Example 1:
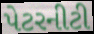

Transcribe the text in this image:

પેટરનીટી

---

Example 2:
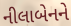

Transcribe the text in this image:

નીલાબેનને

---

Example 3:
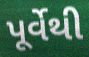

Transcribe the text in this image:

પૂર્વેથી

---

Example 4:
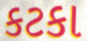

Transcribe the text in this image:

કટકા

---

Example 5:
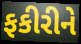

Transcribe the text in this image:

ફકીરીને